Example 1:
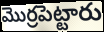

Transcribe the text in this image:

మొర్రపెట్టారు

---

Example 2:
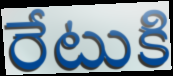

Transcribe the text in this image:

రేటుకి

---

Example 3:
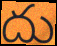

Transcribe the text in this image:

దు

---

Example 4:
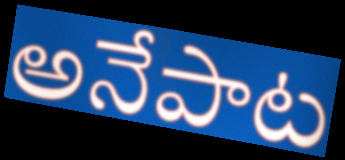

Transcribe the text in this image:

అనేపాట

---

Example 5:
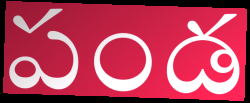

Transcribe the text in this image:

పండ